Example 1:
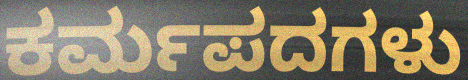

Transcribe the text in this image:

ಕರ್ಮಪದಗಳು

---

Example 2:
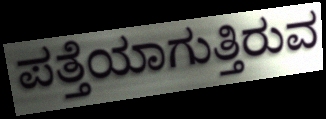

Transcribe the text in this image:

ಪತ್ತೆಯಾಗುತ್ತಿರುವ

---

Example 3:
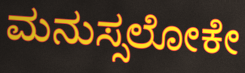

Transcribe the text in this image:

ಮನುಸ್ಸಲೋಕೇ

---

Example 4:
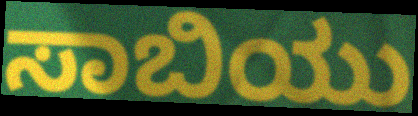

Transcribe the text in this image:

ಸಾಬಿಯು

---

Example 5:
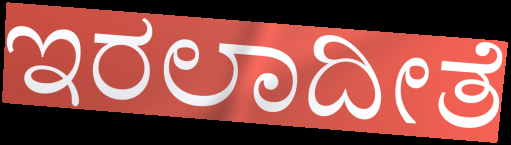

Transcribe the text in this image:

ಇರಲಾದೀತೆ